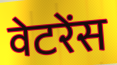
वेटरेंस